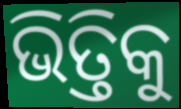
ଭିତ୍ତିକୁ